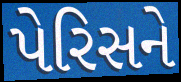
પેરિસને